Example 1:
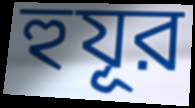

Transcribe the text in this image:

হুযূর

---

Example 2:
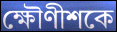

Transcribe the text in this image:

ক্ষৌণীশকে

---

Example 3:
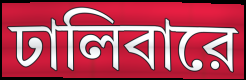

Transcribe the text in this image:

ঢালিবারে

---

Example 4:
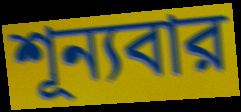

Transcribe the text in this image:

শূন্যবার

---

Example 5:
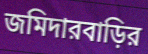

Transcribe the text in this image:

জমিদারবাড়ির